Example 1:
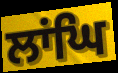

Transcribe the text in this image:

ਲਾਂਘਿ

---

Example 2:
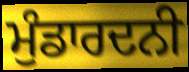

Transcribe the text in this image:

ਮੁੰਡਾਰਦਨੀ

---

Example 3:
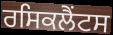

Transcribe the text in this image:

ਰਸਿਕਲੈਂਟਸ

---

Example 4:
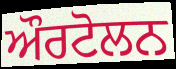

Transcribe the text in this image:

ਔਰਟੋਲਨ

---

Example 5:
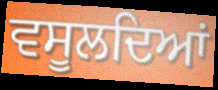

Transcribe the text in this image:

ਵਸੂਲਦਿਆਂ